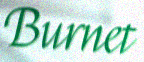
Burnet